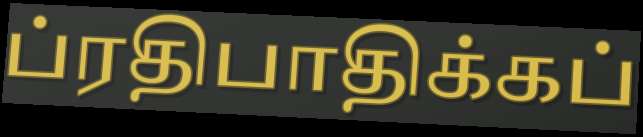
ப்ரதிபாதிக்கப்